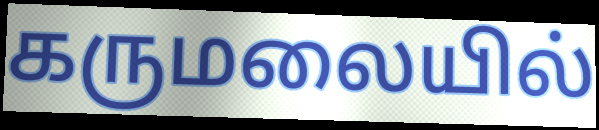
கருமலையில்